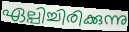
ഏല്പിച്ചിരിക്കുന്നു